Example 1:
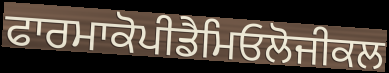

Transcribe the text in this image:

ਫਾਰਮਾਕੋਪੀਡੈਮਿਓਲੋਜੀਕਲ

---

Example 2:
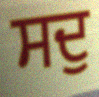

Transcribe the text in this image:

ਸਦੁ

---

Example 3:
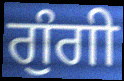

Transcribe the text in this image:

ਗੁੰਗੀ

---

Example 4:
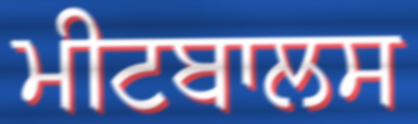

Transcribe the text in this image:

ਮੀਟਬਾਲਸ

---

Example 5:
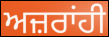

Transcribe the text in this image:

ਅਜ਼ਰਾਂਹੀ